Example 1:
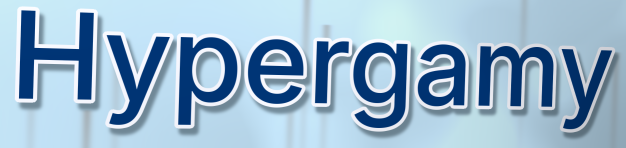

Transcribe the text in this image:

Hypergamy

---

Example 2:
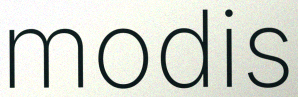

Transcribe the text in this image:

modis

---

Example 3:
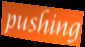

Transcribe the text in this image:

pushing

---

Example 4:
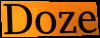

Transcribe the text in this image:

Doze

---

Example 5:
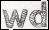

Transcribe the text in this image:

wd